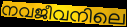
നവജീവനിലെ